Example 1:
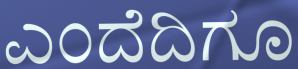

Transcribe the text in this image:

ಎಂದೆದಿಗೂ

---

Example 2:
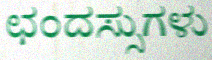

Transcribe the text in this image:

ಛಂದಸ್ಸುಗಳು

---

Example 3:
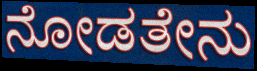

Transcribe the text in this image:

ನೋಡತೇನು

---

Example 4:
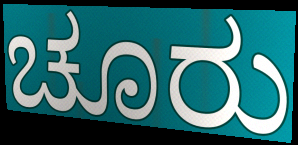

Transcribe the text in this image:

ಚೂರು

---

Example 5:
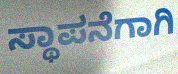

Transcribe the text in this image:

ಸ್ಥಾಪನೆಗಾಗಿ